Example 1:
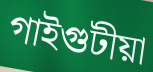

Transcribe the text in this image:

গাইগুটীয়া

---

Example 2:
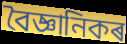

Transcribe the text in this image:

বৈজ্ঞানিকৰ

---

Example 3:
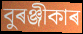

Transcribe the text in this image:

বুৰঞ্জীকাৰ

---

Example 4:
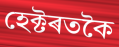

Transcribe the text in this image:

হেক্টৰতকৈ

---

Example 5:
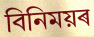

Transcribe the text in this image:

বিনিময়ৰ